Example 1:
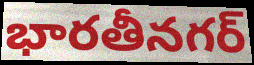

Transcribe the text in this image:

భారతీనగర్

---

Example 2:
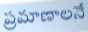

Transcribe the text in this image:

ప్రమాణాలనే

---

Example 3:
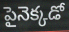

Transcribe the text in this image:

పైనెక్కడో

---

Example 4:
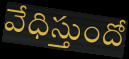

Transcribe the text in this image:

వేధిస్తుందో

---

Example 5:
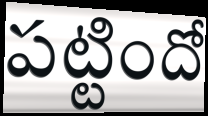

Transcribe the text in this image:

పట్టిందో